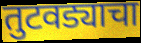
तुटवड्याचा